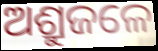
ଅଶ୍ରୁଜଳେ